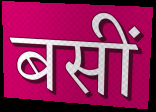
बसीं